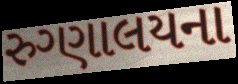
રુગ્ણાલયના